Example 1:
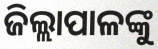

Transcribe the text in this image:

ଜିଲ୍ଲାପାଳଙ୍କୁ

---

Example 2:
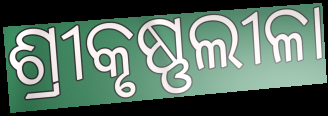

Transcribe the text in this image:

ଶ୍ରୀକୃଷ୍ଣଲୀଳା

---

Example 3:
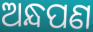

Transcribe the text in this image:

ଅନ୍ଧପଣ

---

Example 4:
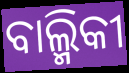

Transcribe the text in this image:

ବାଲ୍ମିକୀ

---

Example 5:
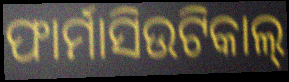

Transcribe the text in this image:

ଫାର୍ମାସିଉଟିକାଲ୍